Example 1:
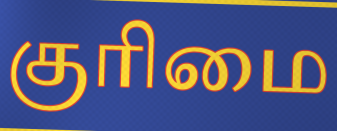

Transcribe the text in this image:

குரிமை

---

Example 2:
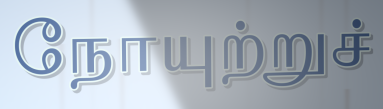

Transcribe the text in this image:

நோயுற்றுச்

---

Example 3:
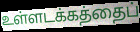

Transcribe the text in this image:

உள்ளடக்கத்தைப்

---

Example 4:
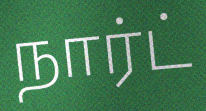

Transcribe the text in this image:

நார்ட்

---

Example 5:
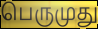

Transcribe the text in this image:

பெருமுது